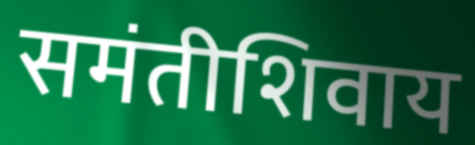
समंतीशिवाय